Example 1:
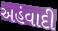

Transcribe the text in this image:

અહંવાદી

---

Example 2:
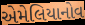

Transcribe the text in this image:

એમેલિયાનોવ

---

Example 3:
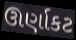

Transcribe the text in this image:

ઊર્ણાકટ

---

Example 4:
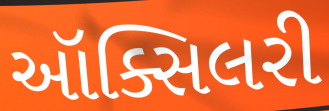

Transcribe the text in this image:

ઑક્સિલરી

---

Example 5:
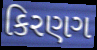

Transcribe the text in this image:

કિરણગ